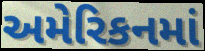
અમેરિકનમાં